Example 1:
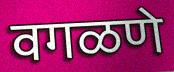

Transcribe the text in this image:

वगळणे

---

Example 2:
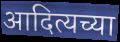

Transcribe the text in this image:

आदित्यच्या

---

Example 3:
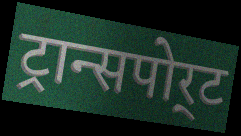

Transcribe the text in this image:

ट्रान्सपोर्ट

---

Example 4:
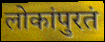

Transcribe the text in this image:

लोकांपुरतं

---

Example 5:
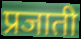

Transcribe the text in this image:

प्रजाती